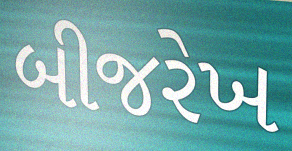
બીજરેખ